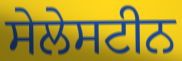
ਸੇਲੇਸਟੀਨ